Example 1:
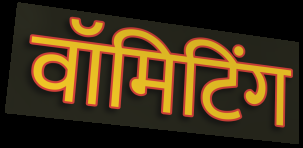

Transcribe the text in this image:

वॉमिटिंग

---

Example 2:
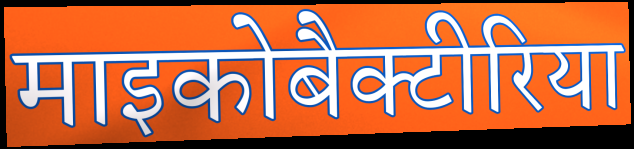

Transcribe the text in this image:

माइकोबैक्टीरिया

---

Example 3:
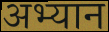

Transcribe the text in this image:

अभ्यान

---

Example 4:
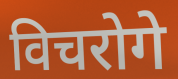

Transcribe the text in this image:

विचरोगे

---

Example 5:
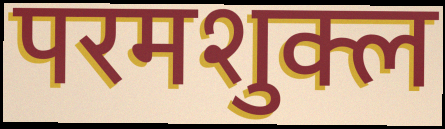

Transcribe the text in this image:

परमशुक्ल